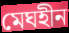
মেঘহীন